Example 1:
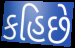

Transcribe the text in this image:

કહિછે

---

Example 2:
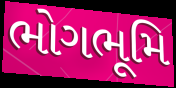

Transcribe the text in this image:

ભોગભૂમિ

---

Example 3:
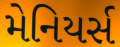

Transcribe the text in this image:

મેનિયર્સ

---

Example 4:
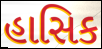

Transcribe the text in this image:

હાસિક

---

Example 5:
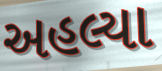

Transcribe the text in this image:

અહલ્યા